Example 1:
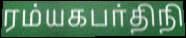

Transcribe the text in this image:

ரம்யகபர்திநி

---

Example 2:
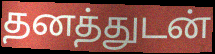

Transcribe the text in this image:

தனத்துடன்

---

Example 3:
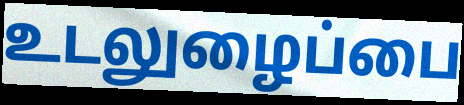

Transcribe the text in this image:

உடலுழைப்பை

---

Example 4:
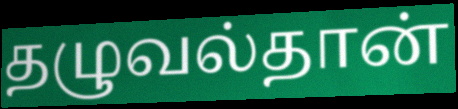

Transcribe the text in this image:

தழுவல்தான்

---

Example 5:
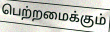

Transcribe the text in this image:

பெற்றமைக்கும்